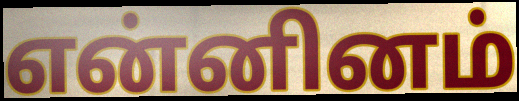
என்னினம்